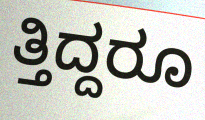
ತ್ತಿದ್ದರೂ